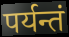
पर्यन्तं